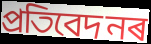
প্ৰতিবেদনৰ